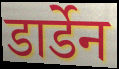
डार्डेन